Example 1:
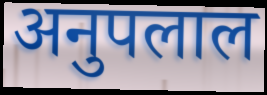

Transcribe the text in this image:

अनुपलाल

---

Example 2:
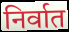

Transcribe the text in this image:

निर्वात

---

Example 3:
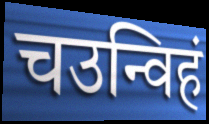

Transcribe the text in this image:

चउन्विहं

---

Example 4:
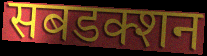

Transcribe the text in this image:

सबडक्शन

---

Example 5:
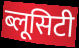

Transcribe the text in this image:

ब्लूसिटी